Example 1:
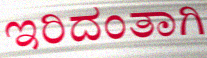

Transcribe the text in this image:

ಇರಿದಂತಾಗಿ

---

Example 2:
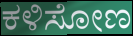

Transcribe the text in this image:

ಕಳಿಸೋಣ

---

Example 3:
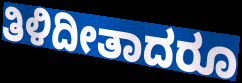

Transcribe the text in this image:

ತಿಳಿದೀತಾದರೂ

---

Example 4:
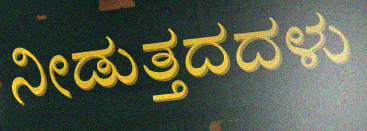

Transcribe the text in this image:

ನೀಡುತ್ತದದಳು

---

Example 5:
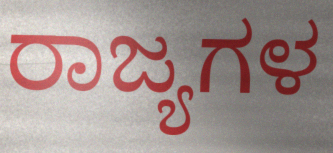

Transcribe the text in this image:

ರಾಜ್ಯಗಳ